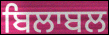
ਬਿਲਾਬਲ